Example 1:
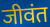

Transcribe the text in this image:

जीवंत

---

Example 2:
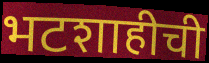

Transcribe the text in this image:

भटशाहीची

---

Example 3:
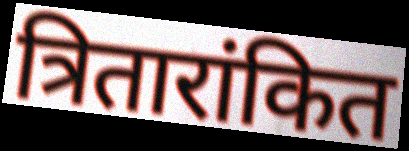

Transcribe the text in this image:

त्रितारांकित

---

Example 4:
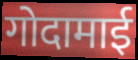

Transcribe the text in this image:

गोदामाई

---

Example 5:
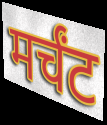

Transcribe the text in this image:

मर्चंट